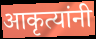
आकृत्यांनी